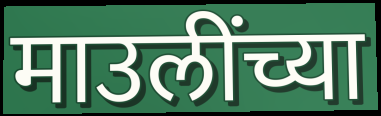
माउलींच्या